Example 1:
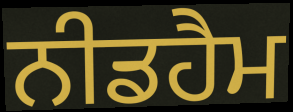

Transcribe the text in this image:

ਨੀਡਹੈਮ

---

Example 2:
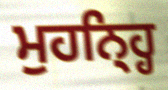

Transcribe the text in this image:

ਮੁਹਨ੍ਹ੍ਹਿ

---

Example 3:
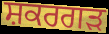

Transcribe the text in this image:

ਸ਼ਕਰਗੜ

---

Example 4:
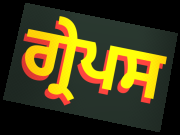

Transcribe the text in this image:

ਗ੍ਰੇਪਸ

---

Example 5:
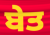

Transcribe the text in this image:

ਬੇਤ